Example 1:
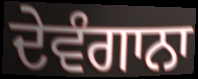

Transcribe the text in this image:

ਦੇਵੰਗਾਨਾ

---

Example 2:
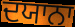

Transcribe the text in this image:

ਦਯਾਨਾ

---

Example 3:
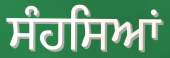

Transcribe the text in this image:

ਸੰਹਸਿਆਂ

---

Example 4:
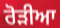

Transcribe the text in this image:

ਰੋੜੀਆ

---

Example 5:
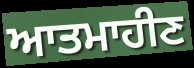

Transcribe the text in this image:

ਆਤਮਾਹੀਣ